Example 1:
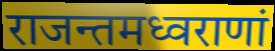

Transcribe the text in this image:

राजन्तमध्वराणां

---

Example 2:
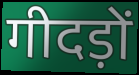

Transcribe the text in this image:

गीदड़ों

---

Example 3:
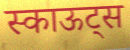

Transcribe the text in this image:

स्काऊट्स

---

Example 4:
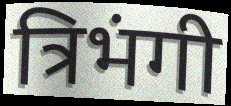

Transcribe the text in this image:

त्रिभंगी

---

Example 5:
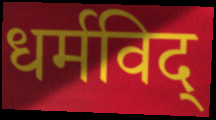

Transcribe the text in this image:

धर्मविद्